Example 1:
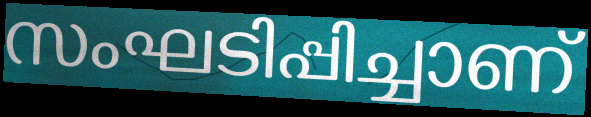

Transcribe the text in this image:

സംഘടിപ്പിച്ചാണ്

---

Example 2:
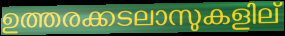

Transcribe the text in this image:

ഉത്തരക്കടലാസുകളില്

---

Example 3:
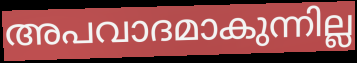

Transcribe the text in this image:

അപവാദമാകുന്നില്ല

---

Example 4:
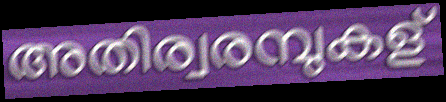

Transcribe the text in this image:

അതിര്വരമ്പുകള്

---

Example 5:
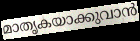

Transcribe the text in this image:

മാതൃകയാക്കുവാൻ